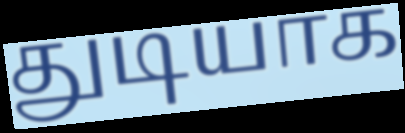
துடியாக